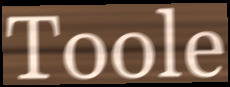
Toole